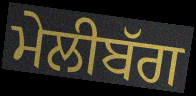
ਮੇਲੀਬੱਗ